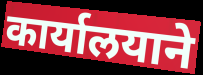
कार्यालयाने